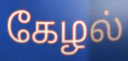
கேழல்